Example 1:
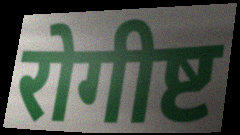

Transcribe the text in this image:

रोगीष्ट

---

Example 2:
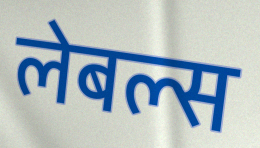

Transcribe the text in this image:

लेबल्स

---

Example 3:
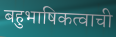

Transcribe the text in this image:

बहुभाषिकत्वाची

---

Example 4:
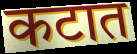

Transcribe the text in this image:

कटात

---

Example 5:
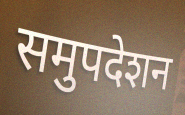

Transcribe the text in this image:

समुपदेशन